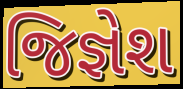
જિજ્ઞેશ